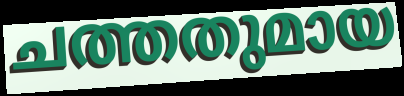
ചത്തതുമായ